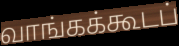
வாங்கக்கூடப்